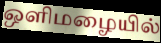
ஒளிமழையில்